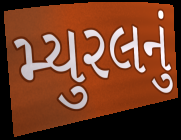
મ્યુરલનું